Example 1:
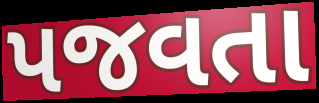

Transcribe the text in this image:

પજવતા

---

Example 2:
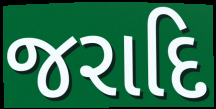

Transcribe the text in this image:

જરાદિ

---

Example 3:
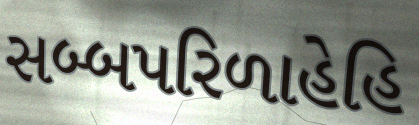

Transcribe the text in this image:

સબ્બપરિળાહેહિ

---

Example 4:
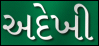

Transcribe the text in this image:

અદેખી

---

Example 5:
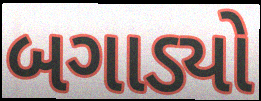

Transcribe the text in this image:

બગાડ્યો